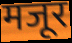
मजूर